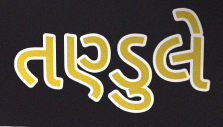
તણ્ડુલે